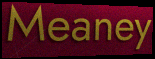
Meaney